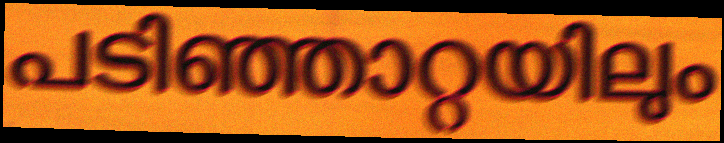
പടിഞ്ഞാറ്റയിലും